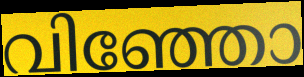
വിഞ്ഞോ